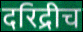
दरिद्रीच